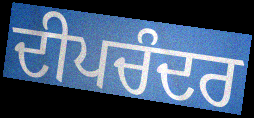
ਦੀਪਚੰਦਰ